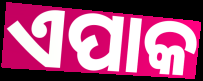
ଏପାକ